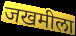
जखमीला